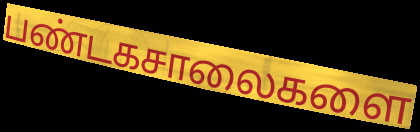
பண்டகசாலைகளை